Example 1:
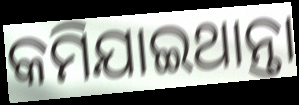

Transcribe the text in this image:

କମିଯାଇଥାନ୍ତା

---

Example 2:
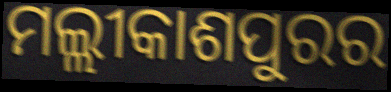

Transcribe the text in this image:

ମଲ୍ଲୀକାଶପୁରର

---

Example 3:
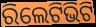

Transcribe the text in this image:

ରିଲେଟିଭିଟି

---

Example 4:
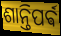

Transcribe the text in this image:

ଶାନ୍ତିପର୍ଵ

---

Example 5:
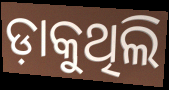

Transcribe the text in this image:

ଡ଼ାକୁଥିଲି